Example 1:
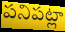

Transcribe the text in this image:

పనిపట్లా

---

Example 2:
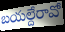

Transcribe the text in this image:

బయల్దేరావో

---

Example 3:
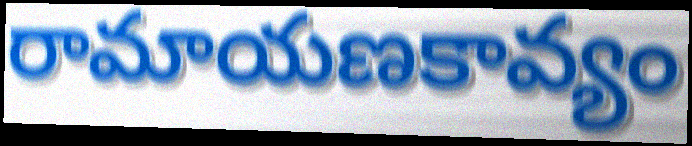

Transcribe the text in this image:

రామాయణకావ్యం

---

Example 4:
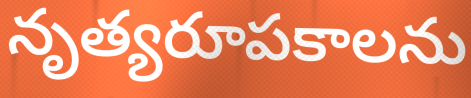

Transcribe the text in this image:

నృత్యరూపకాలను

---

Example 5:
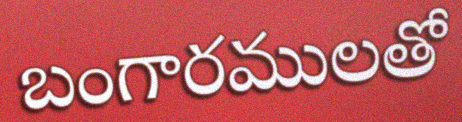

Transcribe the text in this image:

బంగారములతో